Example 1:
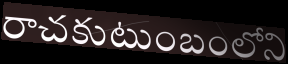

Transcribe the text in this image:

రాచకుటుంబంలోని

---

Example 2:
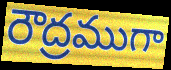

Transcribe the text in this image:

రౌద్రముగా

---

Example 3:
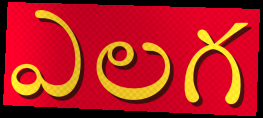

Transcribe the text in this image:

ఎలగ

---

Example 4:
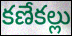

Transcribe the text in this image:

కణేకల్లు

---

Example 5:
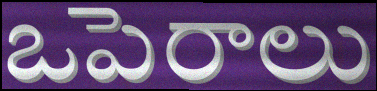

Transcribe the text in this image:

ఒపెరాలు